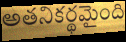
అతనికర్థమైంది